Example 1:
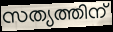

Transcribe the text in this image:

സത്യത്തിന്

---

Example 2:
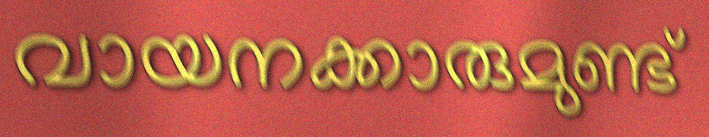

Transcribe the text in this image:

വായനക്കാരുമുണ്ട്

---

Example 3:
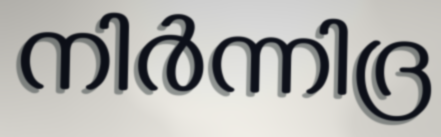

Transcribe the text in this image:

നിർന്നിദ്ര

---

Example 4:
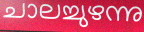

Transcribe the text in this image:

ചാലച്ചുഴന്നു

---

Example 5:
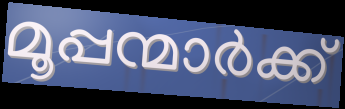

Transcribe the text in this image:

മൂപ്പന്മാർക്ക്